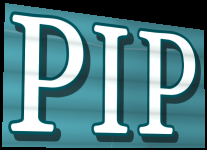
PIP